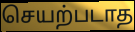
செயற்படாத